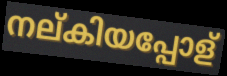
നല്കിയപ്പോള്